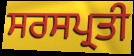
ਸਰਸਪ੍ਰਤੀ